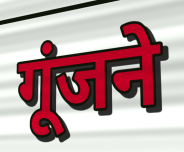
गूंजने